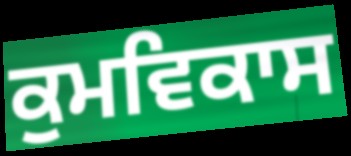
ਕੁਮਵਿਕਾਸ